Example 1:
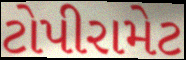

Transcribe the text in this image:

ટોપીરામેટ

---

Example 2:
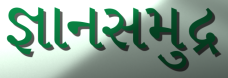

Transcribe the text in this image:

જ્ઞાનસમુદ્ર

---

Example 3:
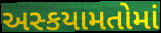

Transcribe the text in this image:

અસ્કયામતોમાં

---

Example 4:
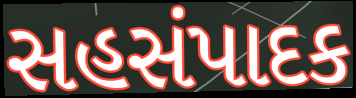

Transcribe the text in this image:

સહસંપાદક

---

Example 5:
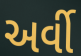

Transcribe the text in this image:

અર્વી